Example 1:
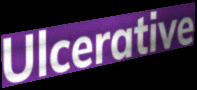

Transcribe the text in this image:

Ulcerative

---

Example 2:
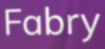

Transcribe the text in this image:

Fabry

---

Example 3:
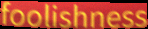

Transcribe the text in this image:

foolishness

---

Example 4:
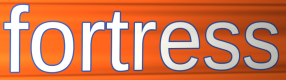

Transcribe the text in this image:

fortress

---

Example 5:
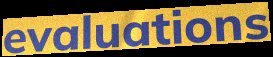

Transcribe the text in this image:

evaluations